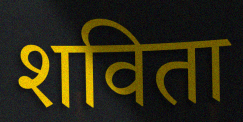
शविता